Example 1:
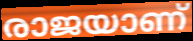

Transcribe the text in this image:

രാജയാണ്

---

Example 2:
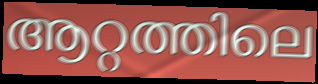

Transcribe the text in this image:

ആറ്റത്തിലെ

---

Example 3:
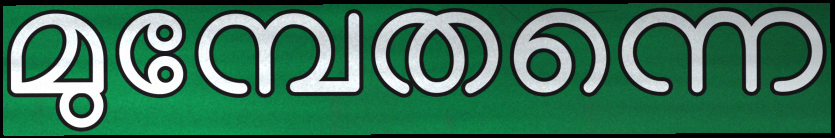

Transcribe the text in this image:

മുമ്പേതന്നെ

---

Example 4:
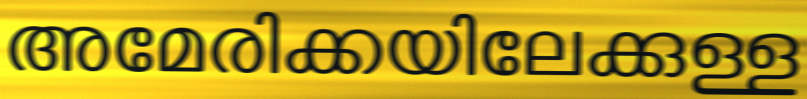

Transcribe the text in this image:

അമേരിക്കയിലേക്കുള്ള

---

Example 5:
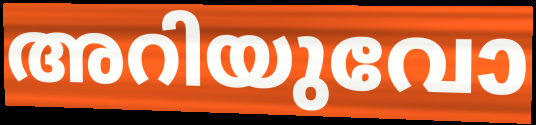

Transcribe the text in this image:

അറിയുവോ